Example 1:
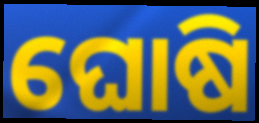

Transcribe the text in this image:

ଘୋଷି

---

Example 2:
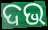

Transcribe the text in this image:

ଦଭ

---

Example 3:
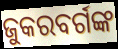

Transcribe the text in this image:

ଜୁକରବର୍ଗଙ୍କ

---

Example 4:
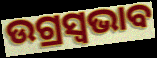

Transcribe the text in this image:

ଉଗ୍ରସ୍ୱଭାବ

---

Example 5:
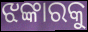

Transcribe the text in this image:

ଝଙ୍କାରକୁ